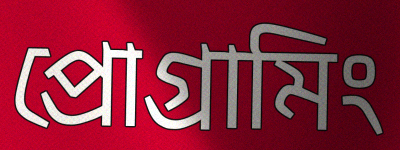
প্ৰোগ্ৰামিং